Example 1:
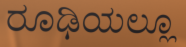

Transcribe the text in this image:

ರೂಢಿಯಲ್ಲೂ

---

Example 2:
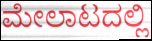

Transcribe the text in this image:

ಮೇಲಾಟದಲ್ಲಿ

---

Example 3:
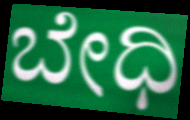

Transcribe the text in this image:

ಬೇಧಿ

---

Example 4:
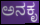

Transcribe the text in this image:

ಅನಕೃ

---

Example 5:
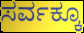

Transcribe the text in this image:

ಸರ್ವಕ್ಕೂ